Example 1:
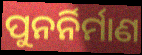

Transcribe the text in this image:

ପୁନର୍ନିର୍ମାଣ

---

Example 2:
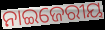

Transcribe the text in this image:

ନାଇଜେରୀୟ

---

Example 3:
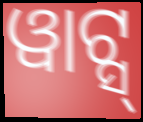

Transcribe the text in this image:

ୱାଟ୍ସ୍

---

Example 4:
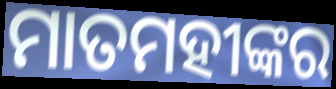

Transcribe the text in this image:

ମାତମହୀଙ୍କର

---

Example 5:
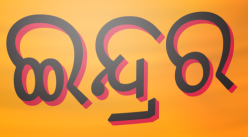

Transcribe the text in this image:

ଇନ୍ଦ୍ରର